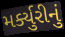
મર્ક્યુરીનું